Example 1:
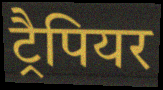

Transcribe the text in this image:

ट्रैपियर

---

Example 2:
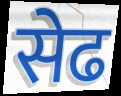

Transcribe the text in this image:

सेढ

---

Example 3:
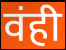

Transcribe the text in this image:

वंही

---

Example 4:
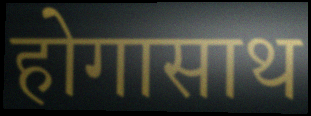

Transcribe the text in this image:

होगासाथ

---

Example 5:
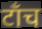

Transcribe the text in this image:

टाँच